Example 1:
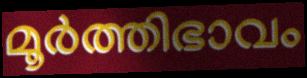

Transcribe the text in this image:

മൂർത്തിഭാവം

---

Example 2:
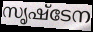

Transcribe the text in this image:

സൃഷ്ടേന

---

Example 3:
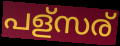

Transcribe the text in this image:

പള്സര്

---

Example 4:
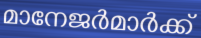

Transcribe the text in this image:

മാനേജർമാർക്ക്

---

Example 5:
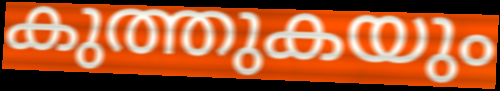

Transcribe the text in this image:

കുത്തുകയും